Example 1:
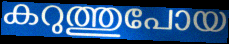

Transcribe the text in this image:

കറുത്തുപോയ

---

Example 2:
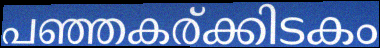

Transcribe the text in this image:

പഞ്ഞകര്ക്കിടകം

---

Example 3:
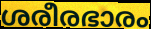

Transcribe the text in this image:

ശരീരഭാരം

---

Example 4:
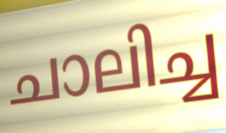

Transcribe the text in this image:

ചാലിച്ച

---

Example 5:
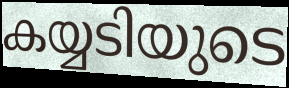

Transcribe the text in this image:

കയ്യടിയുടെ